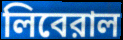
লিবেরাল